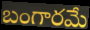
బంగారమే